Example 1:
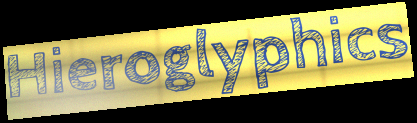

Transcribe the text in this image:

Hieroglyphics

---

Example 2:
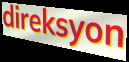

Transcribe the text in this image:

direksyon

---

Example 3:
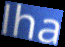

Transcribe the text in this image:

Iha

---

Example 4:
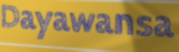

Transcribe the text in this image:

Dayawansa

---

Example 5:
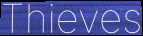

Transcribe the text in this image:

Thieves